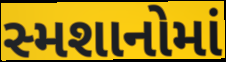
સ્મશાનોમાં